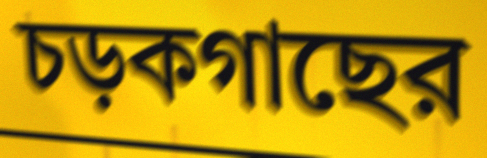
চড়কগাছের